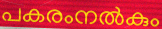
പകരംനൽകും